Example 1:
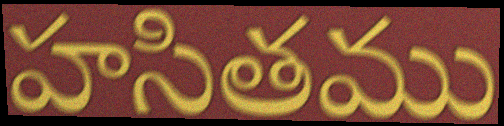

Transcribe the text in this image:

హసితము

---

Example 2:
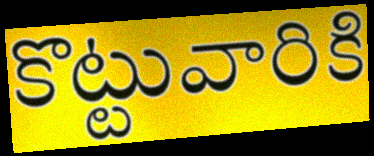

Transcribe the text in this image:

కొట్టువారికి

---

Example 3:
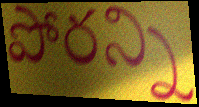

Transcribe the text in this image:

పోరన్ని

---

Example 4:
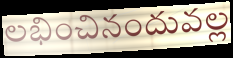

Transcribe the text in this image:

లభించినందువల్ల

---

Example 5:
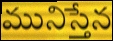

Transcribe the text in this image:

మునిస్తేన